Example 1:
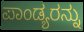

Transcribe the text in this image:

ಪಾಂಡ್ಯರನ್ನು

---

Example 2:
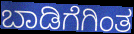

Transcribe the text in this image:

ಬಾಡಿಗೆಗಿಂತ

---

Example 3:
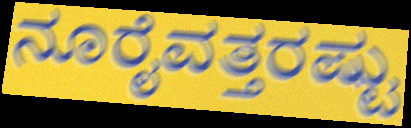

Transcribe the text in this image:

ನೂರೈವತ್ತರಷ್ಟು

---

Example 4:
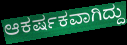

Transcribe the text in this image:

ಆಕರ್ಷಕವಾಗಿದ್ದು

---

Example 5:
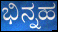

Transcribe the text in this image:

ಭಿನ್ನಹ